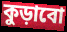
কুড়াবো